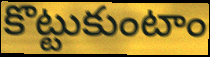
కొట్టుకుంటాం